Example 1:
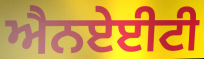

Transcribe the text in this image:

ਐਨਏਈਟੀ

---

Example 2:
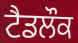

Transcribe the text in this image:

ਟੈਡਲੌਕ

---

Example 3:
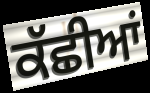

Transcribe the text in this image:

ਕੱਛੀਆਂ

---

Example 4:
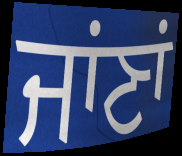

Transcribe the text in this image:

ਜਾਂਣਾਂ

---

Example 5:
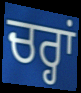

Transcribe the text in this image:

ਚਰ੍ਹਾਂ